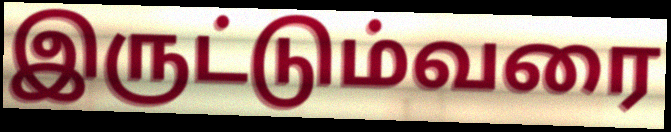
இருட்டும்வரை